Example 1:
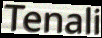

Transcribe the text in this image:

Tenali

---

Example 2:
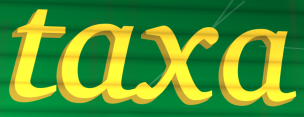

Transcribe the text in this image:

taxa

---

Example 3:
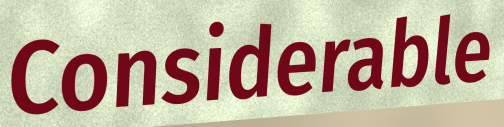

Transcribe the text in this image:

Considerable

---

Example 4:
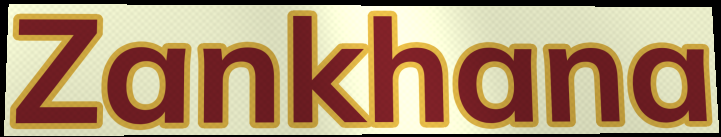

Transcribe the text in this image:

Zankhana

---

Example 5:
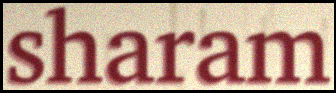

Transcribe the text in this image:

sharam